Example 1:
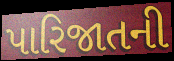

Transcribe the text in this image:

પારિજાતની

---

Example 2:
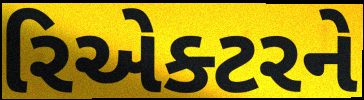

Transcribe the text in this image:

રિએક્ટરને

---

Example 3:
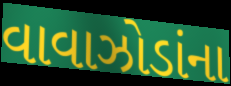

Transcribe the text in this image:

વાવાઝોડાંના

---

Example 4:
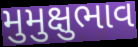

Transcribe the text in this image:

મુમુક્ષુભાવ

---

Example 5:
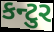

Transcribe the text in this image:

કન્ટુર